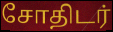
சோதிடர்